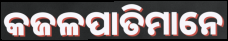
କଜଳପାତିମାନେ